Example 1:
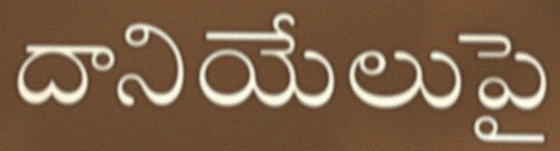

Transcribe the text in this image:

దానియేలుపై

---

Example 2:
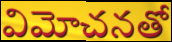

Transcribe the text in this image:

విమోచనతో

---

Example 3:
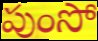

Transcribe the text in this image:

పుంసో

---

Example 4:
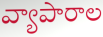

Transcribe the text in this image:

వ్యాపారాల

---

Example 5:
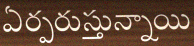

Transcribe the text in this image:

ఏర్పరుస్తున్నాయి